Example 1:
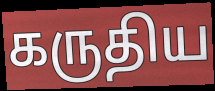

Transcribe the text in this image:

கருதிய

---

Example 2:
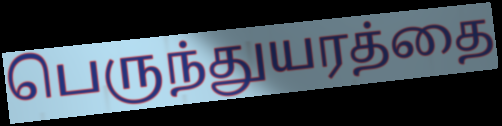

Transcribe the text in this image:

பெருந்துயரத்தை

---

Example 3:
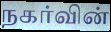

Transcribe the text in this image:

நகர்வின்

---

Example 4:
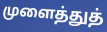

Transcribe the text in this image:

முளைத்துத்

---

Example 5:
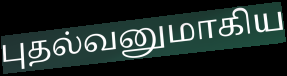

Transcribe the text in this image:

புதல்வனுமாகிய